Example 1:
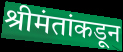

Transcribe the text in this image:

श्रीमंतांकडून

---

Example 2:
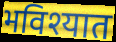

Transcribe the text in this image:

भविश्यात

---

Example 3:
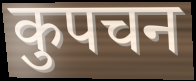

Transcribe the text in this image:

कुपचन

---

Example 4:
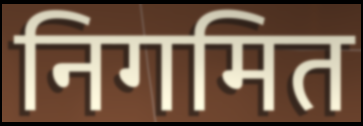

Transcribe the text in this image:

निगमित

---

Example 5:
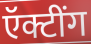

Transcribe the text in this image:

ऍक्टींग